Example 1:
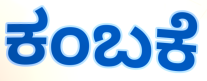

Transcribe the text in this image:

ಕಂಬಕೆ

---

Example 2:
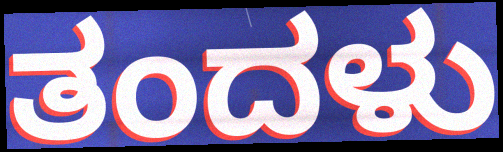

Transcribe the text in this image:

ತಂದಳು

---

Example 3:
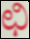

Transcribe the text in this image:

ಛಿ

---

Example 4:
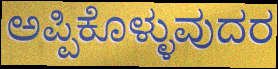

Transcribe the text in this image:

ಅಪ್ಪಿಕೊಳ್ಳುವುದರ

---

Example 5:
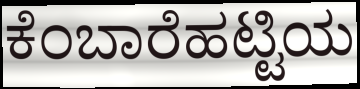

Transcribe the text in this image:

ಕೆಂಬಾರೆಹಟ್ಟಿಯ